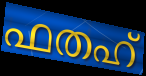
ഫതഹ്